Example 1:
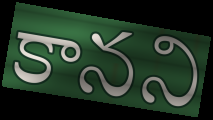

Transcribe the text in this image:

కానని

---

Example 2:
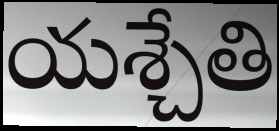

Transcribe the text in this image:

యశ్చేతి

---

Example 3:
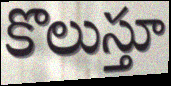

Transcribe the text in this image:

కొలుస్తూ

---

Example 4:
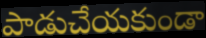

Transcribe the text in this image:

పాడుచేయకుండా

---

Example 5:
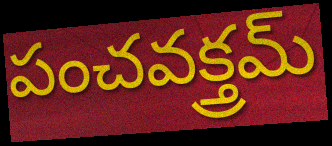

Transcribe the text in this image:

పంచవక్త్రమ్